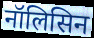
नॉलिसिन